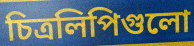
চিত্রলিপিগুলো